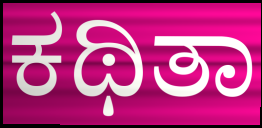
ಕಥಿತಾ